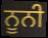
ਨੂਨੀ